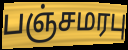
பஞ்சமரபு